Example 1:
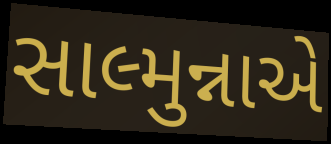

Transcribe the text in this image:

સાલ્મુન્નાએ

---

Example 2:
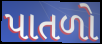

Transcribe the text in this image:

પાતળો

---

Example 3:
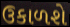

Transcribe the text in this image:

ઉકાળશે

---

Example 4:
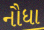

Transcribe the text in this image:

નૌધા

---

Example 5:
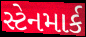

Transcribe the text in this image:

સ્ટેનમાર્ક